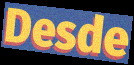
Desde